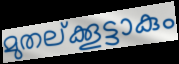
മുതല്ക്കൂട്ടാകും